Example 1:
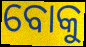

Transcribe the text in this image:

ବୋକୁ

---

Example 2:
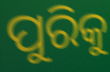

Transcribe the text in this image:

ପୁରିକୁ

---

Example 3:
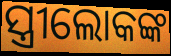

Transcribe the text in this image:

ସ୍ତ୍ରୀଲୋକଙ୍କ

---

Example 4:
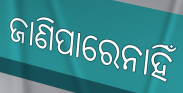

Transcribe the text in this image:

ଜାଣିପାରେନାହିଁ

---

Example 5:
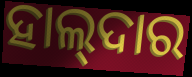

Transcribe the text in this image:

ହାଲ୍‌ଦାର